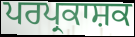
ਪਰਪ੍ਰਕਾਸ਼ਕ